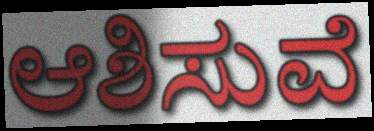
ಆಶಿಸುವೆ